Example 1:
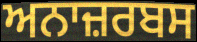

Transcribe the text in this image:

ਅਨਾਜ਼ਰਬਸ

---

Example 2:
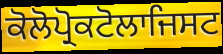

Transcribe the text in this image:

ਕੋਲੋਪ੍ਰੋਕਟੋਲਾਜਿਸਟ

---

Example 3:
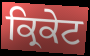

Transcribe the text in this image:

ਕ੍ਰਿਕੇਟ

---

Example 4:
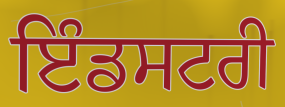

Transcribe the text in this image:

ਇੰਡਸਟਰੀ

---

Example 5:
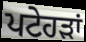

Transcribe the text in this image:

ਪਟੇਹੜਾਂ